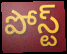
పోస్ట్